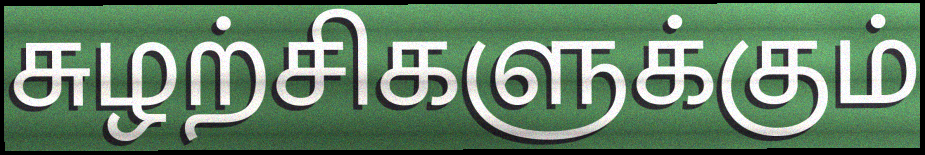
சுழற்சிகளுக்கும்